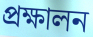
প্রক্ষালন